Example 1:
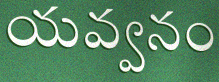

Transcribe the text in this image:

యవ్వనం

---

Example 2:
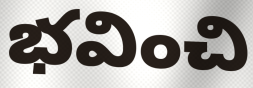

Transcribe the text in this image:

భవించి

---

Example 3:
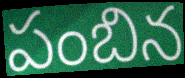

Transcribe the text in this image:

పంబిన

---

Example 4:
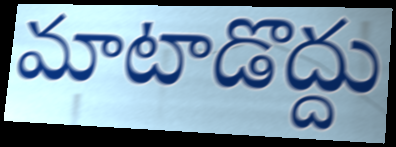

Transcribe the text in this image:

మాటాడొద్దు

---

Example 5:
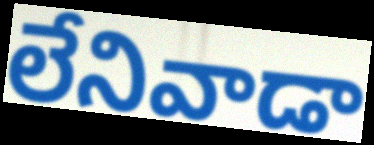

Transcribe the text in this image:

లేనివాడా